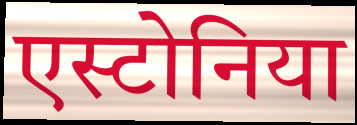
एस्‍टोनिया